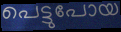
പെട്ടുപോയ